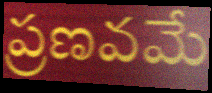
ప్రణవమే